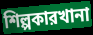
শিল্পকারখানা